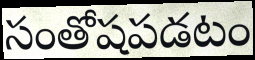
సంతోషపడటం